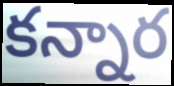
కన్నార